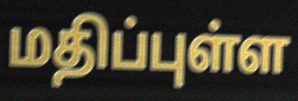
மதிப்புள்ள